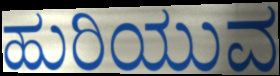
ಹುರಿಯುವ